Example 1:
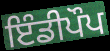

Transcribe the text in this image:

ਇੰਡੀਪੌਪ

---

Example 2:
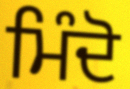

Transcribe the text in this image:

ਮਿੰਦੋ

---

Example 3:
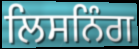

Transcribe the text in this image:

ਲਿਸਨਿੰਗ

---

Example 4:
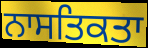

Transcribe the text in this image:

ਨਾਸਤਿਕਤਾ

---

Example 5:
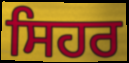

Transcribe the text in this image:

ਸਿਹਰ